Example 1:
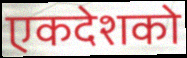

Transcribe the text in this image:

एकदेशको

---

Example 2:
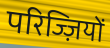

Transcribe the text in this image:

परिज्ज़ियों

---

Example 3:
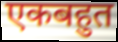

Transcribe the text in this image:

एकबहुत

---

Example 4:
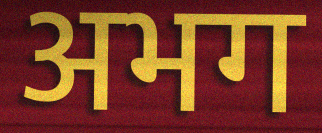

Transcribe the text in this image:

अभग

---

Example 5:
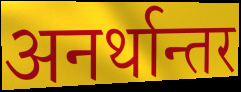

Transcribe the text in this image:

अनर्थान्तर